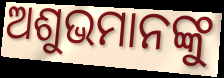
ଅଶୁଭମାନଙ୍କୁ